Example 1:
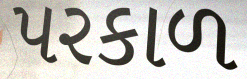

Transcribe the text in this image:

પરકાળ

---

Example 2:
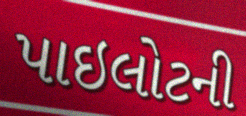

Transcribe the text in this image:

પાઇલોટની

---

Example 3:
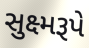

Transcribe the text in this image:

સુક્ષ્મરૂપે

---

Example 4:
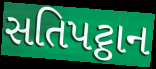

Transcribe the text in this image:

સતિપટ્ઠાન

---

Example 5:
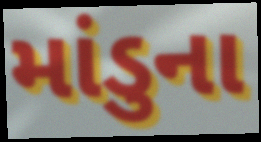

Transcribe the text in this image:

માંડુના